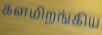
களமிறங்கிய